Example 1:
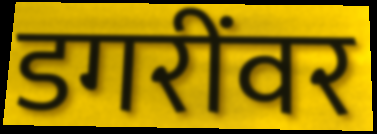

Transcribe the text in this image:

डगरींवर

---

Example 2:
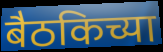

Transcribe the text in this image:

बैठकिच्या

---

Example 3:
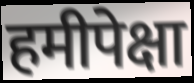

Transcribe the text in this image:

हमीपेक्षा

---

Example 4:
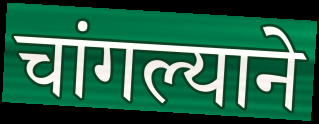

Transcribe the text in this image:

चांगल्याने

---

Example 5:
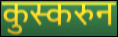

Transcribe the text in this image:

कुस्करुन